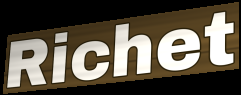
Richet